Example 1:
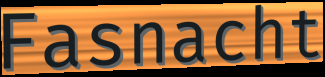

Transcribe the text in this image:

Fasnacht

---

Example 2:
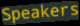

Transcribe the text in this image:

Speakers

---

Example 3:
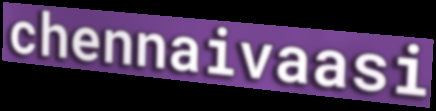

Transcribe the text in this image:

chennaivaasi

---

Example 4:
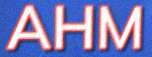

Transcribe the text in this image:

AHM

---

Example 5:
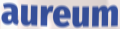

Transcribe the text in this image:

aureum